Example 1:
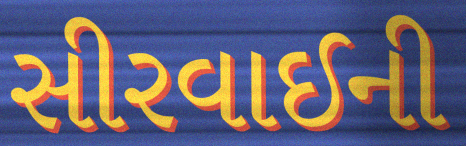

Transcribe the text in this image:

સીરવાઈની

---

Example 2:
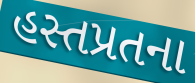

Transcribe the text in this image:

હસ્તપ્રતના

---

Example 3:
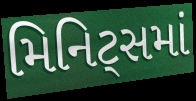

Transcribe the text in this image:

મિનિટ્સમાં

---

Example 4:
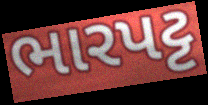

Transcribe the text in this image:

ભારપટ્ટ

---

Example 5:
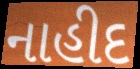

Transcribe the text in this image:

નાહીદ